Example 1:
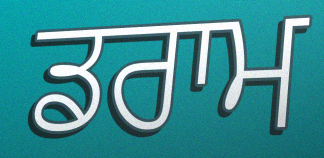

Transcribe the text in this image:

ਡਰਾਮ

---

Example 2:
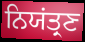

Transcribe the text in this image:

ਨਿਯਂਤ੍ਰਣ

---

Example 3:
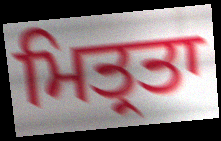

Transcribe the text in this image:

ਮਿਤ੍ਰਤਾ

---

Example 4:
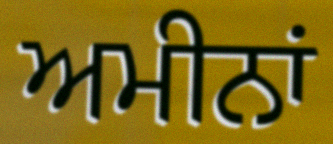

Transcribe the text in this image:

ਅਮੀਨਾਂ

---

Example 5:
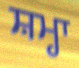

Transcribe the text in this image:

ਸ਼ਮ੍ਹਾ